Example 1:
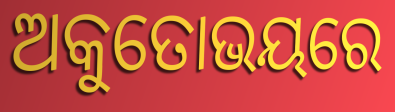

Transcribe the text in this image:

ଅକୁତୋଭୟରେ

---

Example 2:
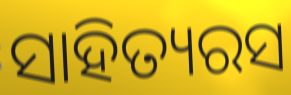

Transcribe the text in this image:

ସାହିତ୍ୟରସ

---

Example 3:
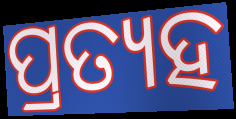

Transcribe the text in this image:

ପ୍ରତ୍ୟହ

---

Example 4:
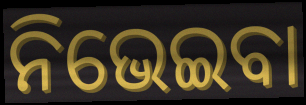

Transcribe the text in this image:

ନିଭେଇବା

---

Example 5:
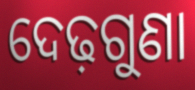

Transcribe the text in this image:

ଦେଢ଼ଗୁଣା